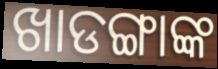
ଖାଡଙ୍ଗାଙ୍କ